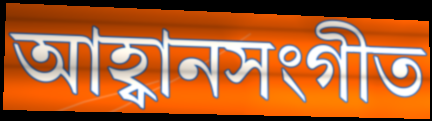
আহ্বানসংগীত